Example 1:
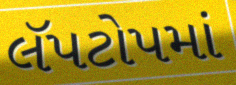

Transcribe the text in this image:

લૅપટોપમાં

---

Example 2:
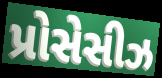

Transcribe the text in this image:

પ્રોસેસીઝ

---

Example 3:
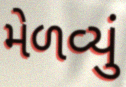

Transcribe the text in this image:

મેળવ્યું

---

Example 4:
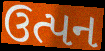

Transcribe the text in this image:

ઉત્પન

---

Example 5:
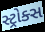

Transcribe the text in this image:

સ્ટ્રોક્સ